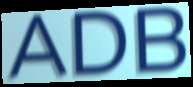
ADB